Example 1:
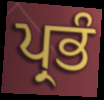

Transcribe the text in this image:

ਪ੍ਰਭੰ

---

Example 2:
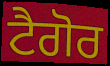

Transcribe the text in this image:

ਟੈਗੋਰ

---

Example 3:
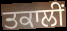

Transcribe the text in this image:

ਤਕਾਲੀਂ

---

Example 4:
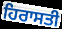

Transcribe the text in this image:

ਹਿਰਾਸਤੀ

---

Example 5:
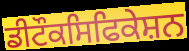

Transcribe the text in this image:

ਡੀਟੌਕਸਿਫਿਕੇਸ਼ਨ